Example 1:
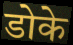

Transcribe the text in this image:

डोके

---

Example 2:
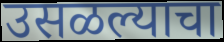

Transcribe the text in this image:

उसळल्याचा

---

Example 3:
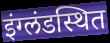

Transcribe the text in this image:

इंग्लंडस्थित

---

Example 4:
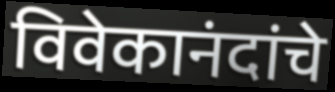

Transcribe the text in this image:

विवेकानंदांचे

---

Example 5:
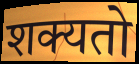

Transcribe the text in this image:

शक्यतो